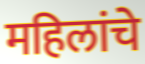
महिलांचे